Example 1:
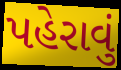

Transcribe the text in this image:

પહેરાવું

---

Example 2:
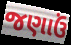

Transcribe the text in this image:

જણાઉં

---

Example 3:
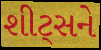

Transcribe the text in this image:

શીટ્સને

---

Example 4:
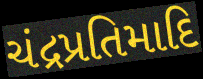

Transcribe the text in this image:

ચંદ્રપ્રતિમાદિ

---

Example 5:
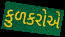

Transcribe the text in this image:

કુળકરોએ